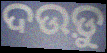
ଦଉଡ଼ୁ